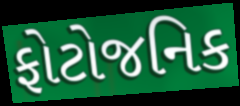
ફોટોજનિક